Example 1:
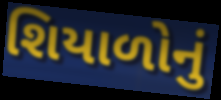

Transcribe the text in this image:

શિયાળોનું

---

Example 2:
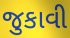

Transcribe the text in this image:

જુકાવી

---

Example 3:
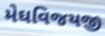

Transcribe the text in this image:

મેઘવિજયજી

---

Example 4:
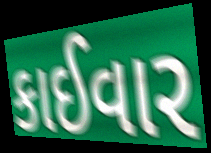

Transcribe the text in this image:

કાઈવાર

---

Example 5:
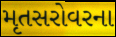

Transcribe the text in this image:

મૃતસરોવરના